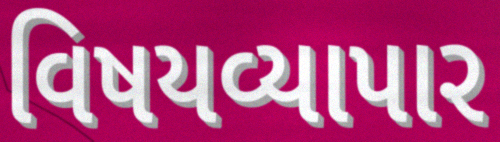
વિષયવ્યાપાર